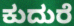
ಕುದುರೆ